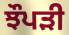
ਝੌਪੜੀ